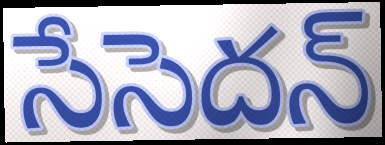
సేసెదన్